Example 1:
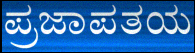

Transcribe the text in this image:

ಪ್ರಜಾಪತಯ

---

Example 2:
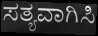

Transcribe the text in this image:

ಸತ್ಯವಾಗಿಸಿ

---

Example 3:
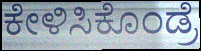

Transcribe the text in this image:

ಕೇಳಿಸಿಕೊಂಡ್ರೆ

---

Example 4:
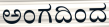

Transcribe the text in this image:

ಅಂಗದಿಂದ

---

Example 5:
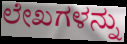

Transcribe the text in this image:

ಲೇಖಗಳನ್ನು